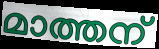
മാത്തന്